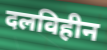
दलविहीन